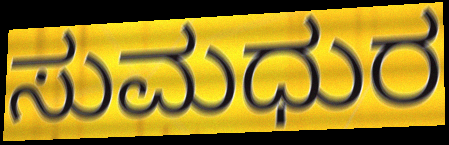
ಸುಮಧುರ